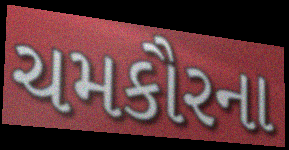
ચમકૌરના